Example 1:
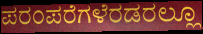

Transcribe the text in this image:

ಪರಂಪರೆಗಳೆರಡರಲ್ಲೂ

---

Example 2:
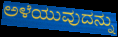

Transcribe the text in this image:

ಅಳೆಯುವುದನ್ನು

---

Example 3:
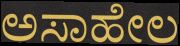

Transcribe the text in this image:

ಅಸಾಹೇಲ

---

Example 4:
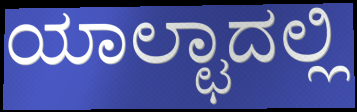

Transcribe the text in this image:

ಯಾಲ್ಟಾದಲ್ಲಿ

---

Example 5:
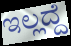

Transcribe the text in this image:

ಇಲ್ಲದ್ದೆ